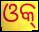
ଓକ୍